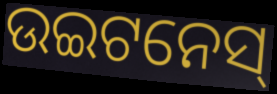
ଉଇଟନେସ୍